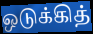
ஒடுக்கித்